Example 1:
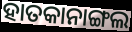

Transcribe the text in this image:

ହାତକାନାଙ୍ଗଲ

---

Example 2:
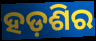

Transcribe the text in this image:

ହଡ଼ଶିର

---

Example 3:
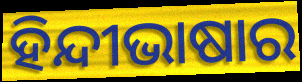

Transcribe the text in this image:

ହିନ୍ଦୀଭାଷାର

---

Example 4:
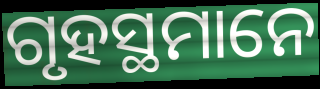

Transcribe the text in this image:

ଗୃହସ୍ଥମାନେ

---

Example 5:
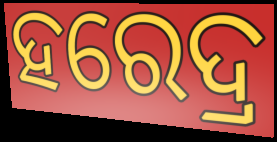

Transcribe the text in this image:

ହରେଦ୍ର